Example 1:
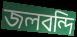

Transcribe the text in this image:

জলবন্দি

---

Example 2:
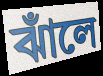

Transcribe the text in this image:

ঝাঁলে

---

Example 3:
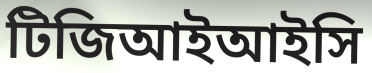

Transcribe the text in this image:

টিজিআইআইসি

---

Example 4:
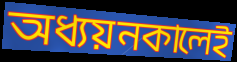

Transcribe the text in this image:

অধ্যয়নকালেই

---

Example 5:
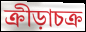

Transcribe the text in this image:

ক্রীড়াচক্র